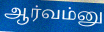
ஆர்வம்னு